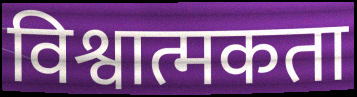
विश्वात्मकता